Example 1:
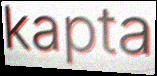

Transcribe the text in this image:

kapta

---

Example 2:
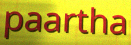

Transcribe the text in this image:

paartha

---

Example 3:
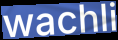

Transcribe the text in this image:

wachli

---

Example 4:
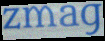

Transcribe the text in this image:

zmag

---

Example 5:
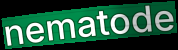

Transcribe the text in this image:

nematode